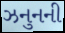
ઝનુનની